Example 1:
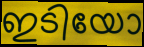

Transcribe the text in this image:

ഇടിയോ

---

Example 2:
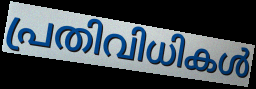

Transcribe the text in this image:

പ്രതിവിധികൾ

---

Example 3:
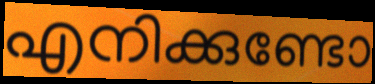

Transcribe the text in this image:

എനിക്കുണ്ടോ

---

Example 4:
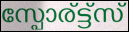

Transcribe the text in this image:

സ്പോര്ട്ട്സ്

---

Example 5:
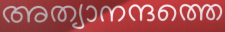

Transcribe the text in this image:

അത്യാനന്ദത്തെ